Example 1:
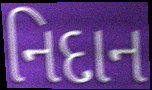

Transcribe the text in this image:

નિદાન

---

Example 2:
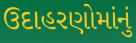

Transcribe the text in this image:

ઉદાહરણોમાંનું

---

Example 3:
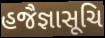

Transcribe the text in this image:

હજૈજ્ઞાસૂચિ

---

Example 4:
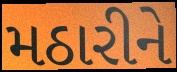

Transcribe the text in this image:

મઠારીને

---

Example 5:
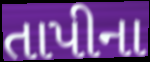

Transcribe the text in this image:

તાપીના